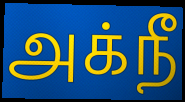
அக்நீ